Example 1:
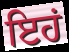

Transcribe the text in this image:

ਇਹਂ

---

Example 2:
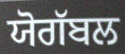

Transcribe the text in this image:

ਯੋਗੱਬਲ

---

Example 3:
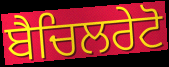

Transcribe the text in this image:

ਬੈਚਿਲਰੇਟੋ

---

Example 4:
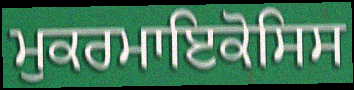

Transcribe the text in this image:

ਮੁਕਰਮਾਇਕੋਸਿਸ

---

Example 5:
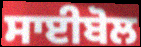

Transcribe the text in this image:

ਸਾਈਬੋਲ